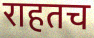
राहतच